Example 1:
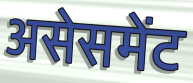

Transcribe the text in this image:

असेसमेंट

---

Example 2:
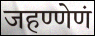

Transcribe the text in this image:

जहण्णेणं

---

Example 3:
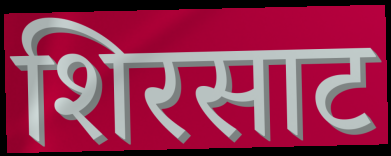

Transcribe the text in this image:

शिरसाट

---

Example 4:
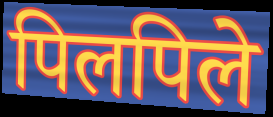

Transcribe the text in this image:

पिलपिले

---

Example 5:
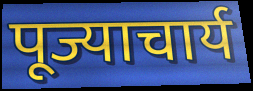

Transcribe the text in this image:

पूज्याचार्य